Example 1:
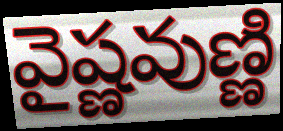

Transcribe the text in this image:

వైష్ణవుణ్ణి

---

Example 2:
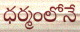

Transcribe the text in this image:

ధర్మంలోనే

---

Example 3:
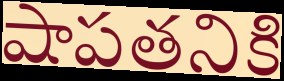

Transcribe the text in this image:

షాపతనికి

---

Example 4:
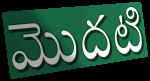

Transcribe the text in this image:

మొదటి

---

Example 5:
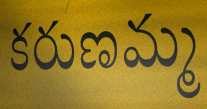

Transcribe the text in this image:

కరుణమ్మ